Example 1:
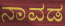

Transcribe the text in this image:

ನಾವಡ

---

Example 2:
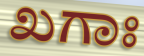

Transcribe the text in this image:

ಖಗಾಃ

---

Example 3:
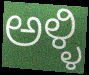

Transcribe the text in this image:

ಅಳ್ಳಿ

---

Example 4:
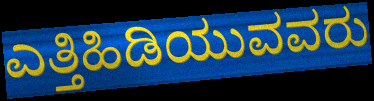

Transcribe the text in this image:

ಎತ್ತಿಹಿಡಿಯುವವರು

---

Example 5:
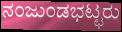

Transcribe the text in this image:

ನಂಜುಂಡಭಟ್ಟರು